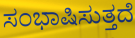
ಸಂಭಾಷಿಸುತ್ತದೆ